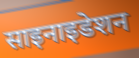
साइनाइडेशन